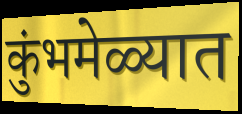
कुंभमेळ्यात